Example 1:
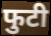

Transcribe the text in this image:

फुटी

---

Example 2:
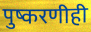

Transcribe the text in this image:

पुष्करणीही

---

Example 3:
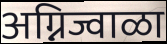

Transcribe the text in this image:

अग्निज्वाळा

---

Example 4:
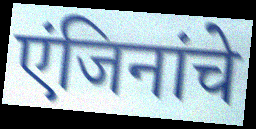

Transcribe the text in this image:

एंजिनांचे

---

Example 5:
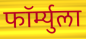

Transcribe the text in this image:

फॉर्म्युला